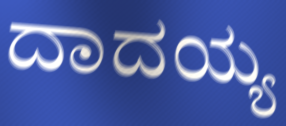
ದಾದಯ್ಯ